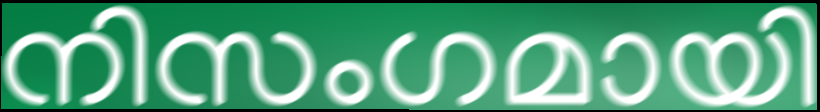
നിസംഗമായി